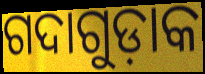
ଗଦାଗୁଡ଼ାକ